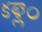
కళ్లెం